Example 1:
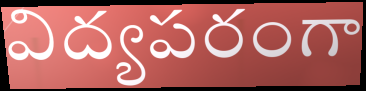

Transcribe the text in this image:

విద్యపరంగా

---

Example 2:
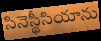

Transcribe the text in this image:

సినెస్థీసియాను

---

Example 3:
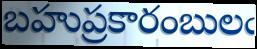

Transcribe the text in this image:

బహుప్రకారంబులఁ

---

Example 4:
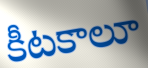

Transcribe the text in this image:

కీటకాలూ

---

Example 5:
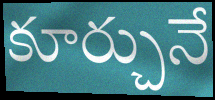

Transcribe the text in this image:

కూర్చునే